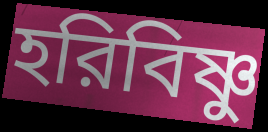
হরিবিষ্ণু